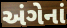
અંગેનાં